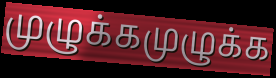
முழுக்கமுழுக்க